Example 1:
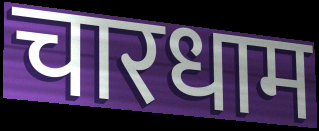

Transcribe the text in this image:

चारधाम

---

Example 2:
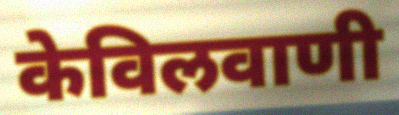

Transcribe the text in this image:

केविलवाणी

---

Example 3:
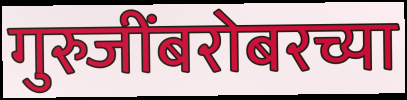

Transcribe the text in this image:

गुरुजींबरोबरच्या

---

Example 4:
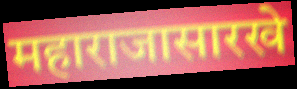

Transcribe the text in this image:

महाराजासारखे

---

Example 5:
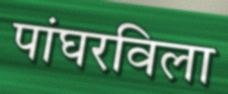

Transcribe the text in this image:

पांघरविला